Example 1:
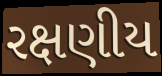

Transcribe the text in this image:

રક્ષણીય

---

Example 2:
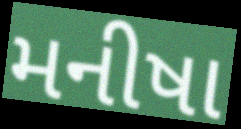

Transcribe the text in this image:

મનીષા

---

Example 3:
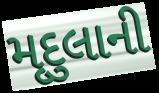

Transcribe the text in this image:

મૃદુલાની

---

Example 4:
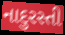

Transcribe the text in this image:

નાદુરસ્તી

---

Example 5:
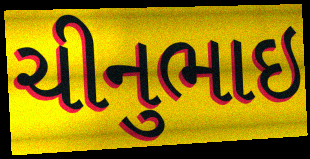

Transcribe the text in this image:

ચીનુભાઇ